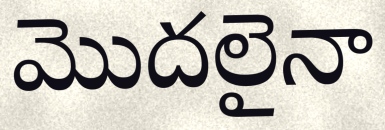
మొదలైనా